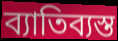
ব্যাতিব্যস্ত